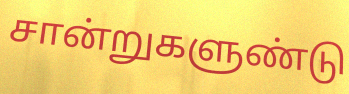
சான்றுகளுண்டு